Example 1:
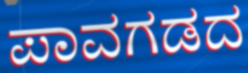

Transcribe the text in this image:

ಪಾವಗಡದ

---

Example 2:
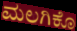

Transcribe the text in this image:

ಮಲಗಿಕೊ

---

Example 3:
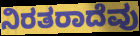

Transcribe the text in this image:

ನಿರತರಾದೆವು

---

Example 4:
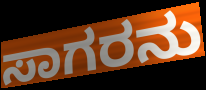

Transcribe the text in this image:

ಸಾಗರನು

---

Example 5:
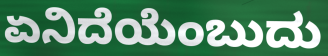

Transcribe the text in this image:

ಏನಿದೆಯೆಂಬುದು